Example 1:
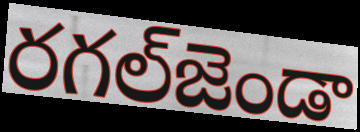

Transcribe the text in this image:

రగల్‌జెండా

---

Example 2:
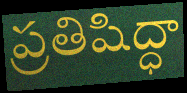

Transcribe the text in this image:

ప్రతిషిద్ధా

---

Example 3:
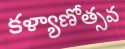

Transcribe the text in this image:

కళ్యాణోత్సవ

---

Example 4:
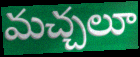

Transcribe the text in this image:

మచ్చలూ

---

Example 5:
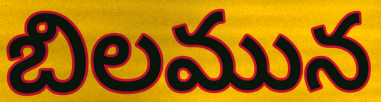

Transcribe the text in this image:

బిలమున